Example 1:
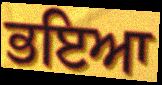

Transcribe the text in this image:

ਭਇਆ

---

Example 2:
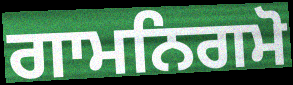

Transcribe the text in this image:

ਗਾਮਨਿਗਮੋ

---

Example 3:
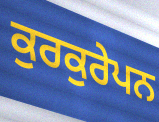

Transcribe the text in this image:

ਕੁਰਕੁਰੇਪਨ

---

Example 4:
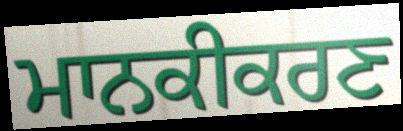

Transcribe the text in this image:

ਮਾਨਕੀਕਰਣ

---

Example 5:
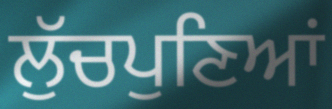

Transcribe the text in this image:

ਲੁੱਚਪੁਣਿਆਂ